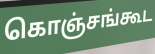
கொஞ்சங்கூட